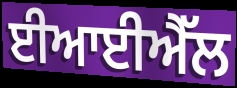
ਈਆਈਐੱਲ